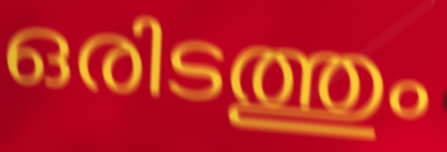
ഒരിടത്തും